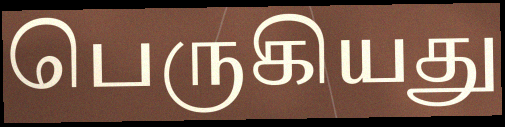
பெருகியது